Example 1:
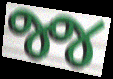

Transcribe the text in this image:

જ્જ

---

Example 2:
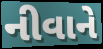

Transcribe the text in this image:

નીવાને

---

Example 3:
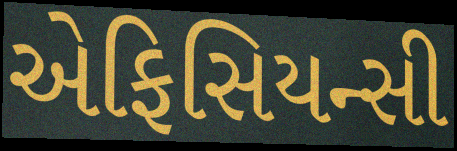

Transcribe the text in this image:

એફિસિયન્સી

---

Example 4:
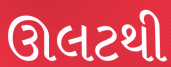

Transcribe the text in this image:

ઊલટથી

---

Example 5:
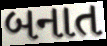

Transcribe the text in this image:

બનાત